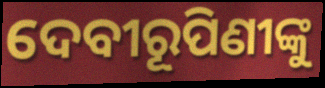
ଦେବୀରୂପିଣୀଙ୍କୁ